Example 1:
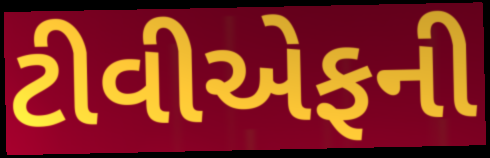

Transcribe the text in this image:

ટીવીએફની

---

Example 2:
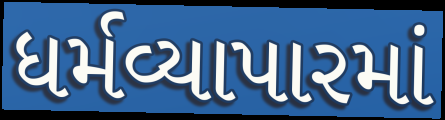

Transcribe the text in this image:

ધર્મવ્યાપારમાં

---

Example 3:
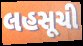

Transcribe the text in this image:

લહસૂચી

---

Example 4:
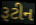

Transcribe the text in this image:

રૂટીન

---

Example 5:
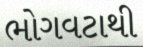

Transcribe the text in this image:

ભોગવટાથી